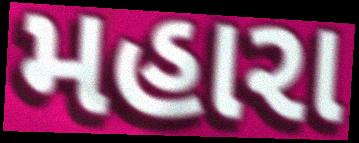
મહારા